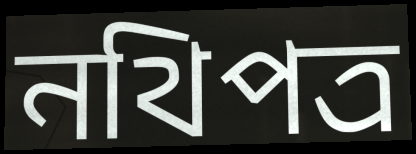
নথিপত্ৰ